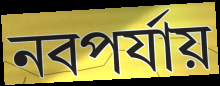
নবপর্যায়